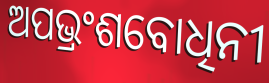
ଅପଭ୍ରଂଶବୋଧିନୀ